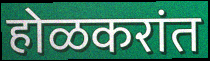
होळकरांत